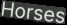
Horses